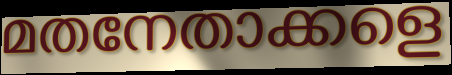
മതനേതാക്കളെ